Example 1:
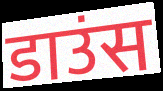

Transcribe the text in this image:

डाउंस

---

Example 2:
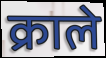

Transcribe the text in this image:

क्राले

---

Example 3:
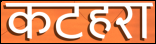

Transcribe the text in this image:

कटहरा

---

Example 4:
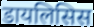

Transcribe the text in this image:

डायलिसिस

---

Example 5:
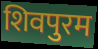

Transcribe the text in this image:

शिवपुरम